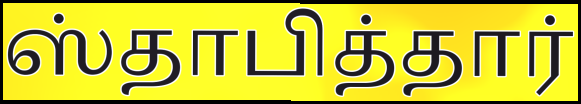
ஸ்தாபித்தார்